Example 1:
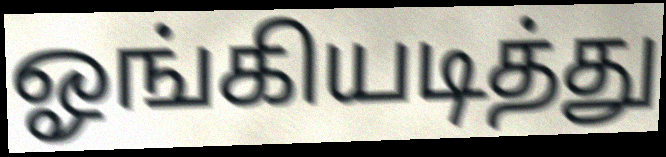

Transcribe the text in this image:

ஓங்கியடித்து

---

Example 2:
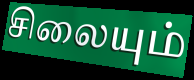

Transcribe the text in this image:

சிலையும்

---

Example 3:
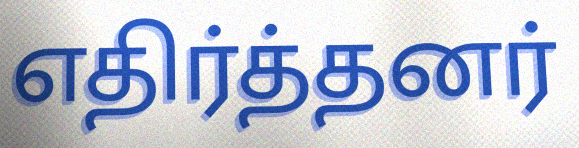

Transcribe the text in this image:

எதிர்த்தனர்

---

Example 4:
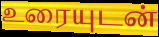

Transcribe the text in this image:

உரையுடன்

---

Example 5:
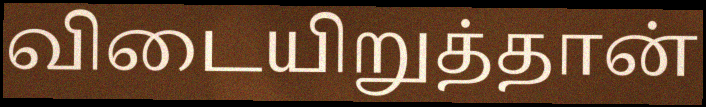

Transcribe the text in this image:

விடையிறுத்தான்